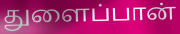
துளைப்பான்